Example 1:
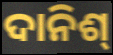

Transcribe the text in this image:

ଦାନିଶ୍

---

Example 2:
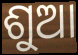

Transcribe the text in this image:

ଶୁଆ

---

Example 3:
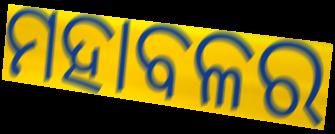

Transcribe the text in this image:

ମହାବଳର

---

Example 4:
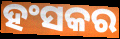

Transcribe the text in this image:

ହଂସକର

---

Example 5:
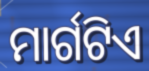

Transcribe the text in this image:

ମାର୍ଗଟିଏ